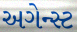
અગેન્સ્ટ